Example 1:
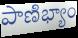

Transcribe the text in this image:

పాణిభ్యాం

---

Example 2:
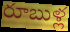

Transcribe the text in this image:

రూబుళ్ల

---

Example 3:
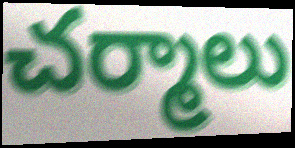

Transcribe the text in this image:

చర్మాలు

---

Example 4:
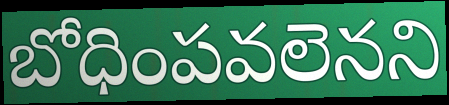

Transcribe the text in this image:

బోధింపవలెనని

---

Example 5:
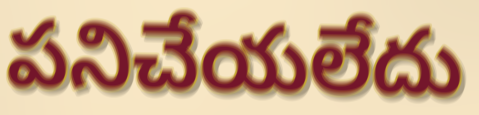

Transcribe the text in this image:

పనిచేయలేదు